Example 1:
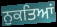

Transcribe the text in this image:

ਨੁਕਤਿਆਂ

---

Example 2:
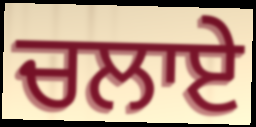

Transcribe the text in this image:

ਚਲਾਏ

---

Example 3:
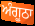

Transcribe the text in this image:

ਅੰਗੂਠਾ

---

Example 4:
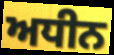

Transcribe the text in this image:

ਅਧੀਨ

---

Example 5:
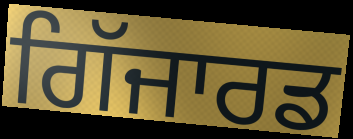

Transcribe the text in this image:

ਗਿੱਜਾਰਡ